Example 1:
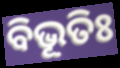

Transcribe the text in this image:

ବିଭୂତିଃ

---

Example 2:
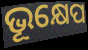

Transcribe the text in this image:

ଭୂକ୍ଷେପ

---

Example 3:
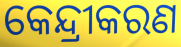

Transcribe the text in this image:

କେନ୍ଦ୍ରୀକରଣ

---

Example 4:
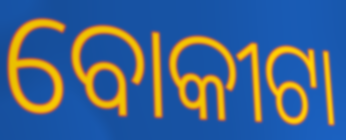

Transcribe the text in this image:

ବୋକୀଟା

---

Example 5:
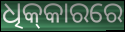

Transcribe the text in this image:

ଧିକ୍‌କାରରେ